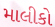
માલીકો